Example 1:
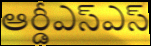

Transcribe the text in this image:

ఆర్డీఎస్ఎస్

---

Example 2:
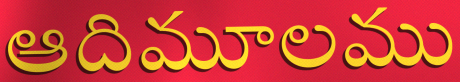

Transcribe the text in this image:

ఆదిమూలము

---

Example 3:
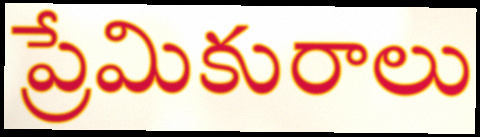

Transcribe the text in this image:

ప్రేమికురాలు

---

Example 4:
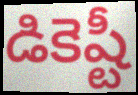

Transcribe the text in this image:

డికెష్టీ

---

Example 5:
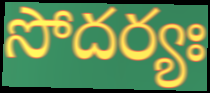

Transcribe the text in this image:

సోదర్యః